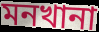
মনখানা